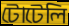
টোটেলি